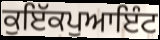
ਕੁਇੱਕਪੁਆਇੰਟ